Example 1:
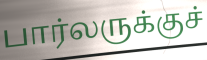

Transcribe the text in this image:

பார்லருக்குச்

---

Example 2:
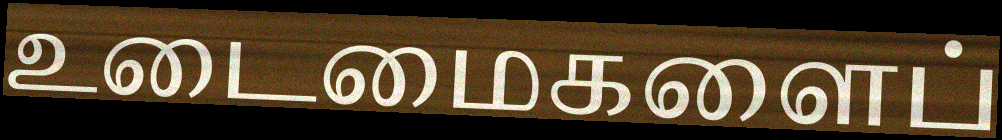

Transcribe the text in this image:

உடைமைகளைப்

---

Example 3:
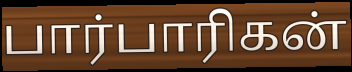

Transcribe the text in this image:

பார்பாரிகன்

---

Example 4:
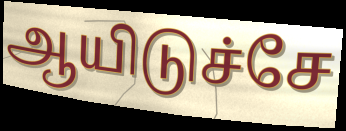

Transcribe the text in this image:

ஆயிடுச்சே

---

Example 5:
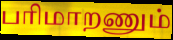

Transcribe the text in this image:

பரிமாறணும்